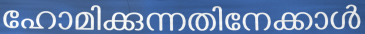
ഹോമിക്കുന്നതിനേക്കാൾ